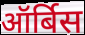
ऑर्बिस